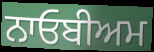
ਨਾਓਬੀਅਮ